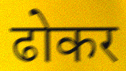
ढोकर